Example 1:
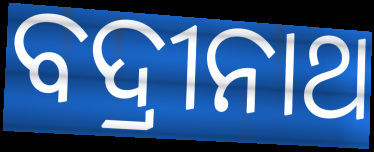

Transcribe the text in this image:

ବଦ୍ରୀନାଥ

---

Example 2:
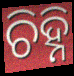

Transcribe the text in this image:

ଚିହ୍ନି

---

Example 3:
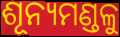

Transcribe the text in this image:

ଶୂନ୍ୟମଣ୍ଡଳୁ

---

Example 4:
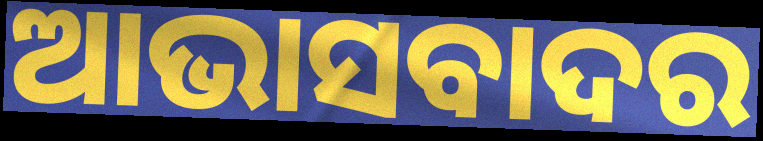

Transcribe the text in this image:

ଆଭାସବାଦର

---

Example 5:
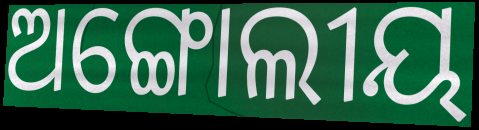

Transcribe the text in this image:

ଅଙ୍ଗୋଲୀୟ